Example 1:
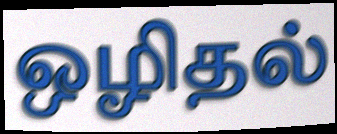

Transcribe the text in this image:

ஒழிதல்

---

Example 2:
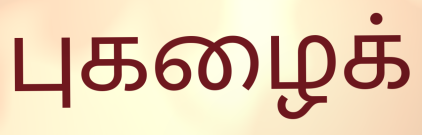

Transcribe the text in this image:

புகழைக்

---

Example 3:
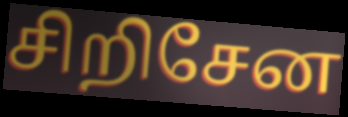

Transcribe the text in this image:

சிறிசேன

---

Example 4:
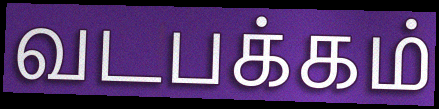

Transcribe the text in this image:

வடபக்கம்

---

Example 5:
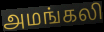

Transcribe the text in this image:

அமங்கலி